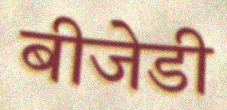
बीजेडी